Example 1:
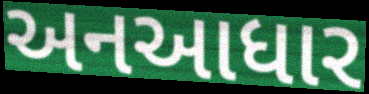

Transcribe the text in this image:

અનઆધાર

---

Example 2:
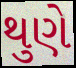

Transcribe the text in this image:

થુણે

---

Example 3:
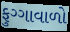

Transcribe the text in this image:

ફુગ્ગાવાળો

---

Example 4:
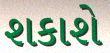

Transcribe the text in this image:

શકાશે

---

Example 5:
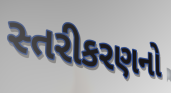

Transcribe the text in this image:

સ્તરીકરણનો